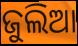
ଜୁଲିଆ